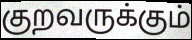
குறவருக்கும்